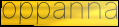
oppanna